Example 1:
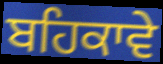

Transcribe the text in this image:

ਬਹਿਕਾਵੇ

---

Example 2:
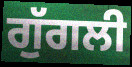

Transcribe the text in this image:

ਗੁੱਗਲੀ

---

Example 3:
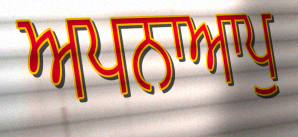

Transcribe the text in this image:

ਅਪਨਾਆਪੁ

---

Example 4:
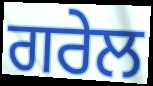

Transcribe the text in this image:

ਗਰੇਲ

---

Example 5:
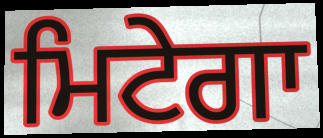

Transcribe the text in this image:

ਮਿਟੇਗਾ